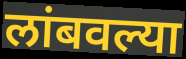
लांबवल्या